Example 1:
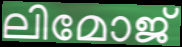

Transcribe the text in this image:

ലിമോജ്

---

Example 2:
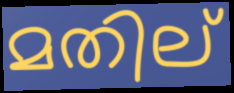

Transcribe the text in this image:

മതില്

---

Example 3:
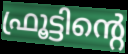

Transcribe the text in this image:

ഫ്രൂട്ടിന്റെ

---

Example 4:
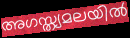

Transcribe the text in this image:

അഗസ്ത്യമലയിൽ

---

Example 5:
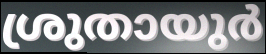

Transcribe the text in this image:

ശ്രുതായുർ